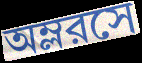
অম্লরসে